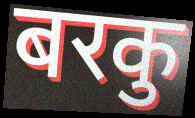
बरकु